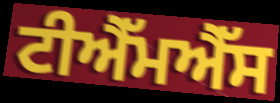
ਟੀਐੱਮਐੱਸ